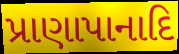
પ્રાણાપાનાદિ